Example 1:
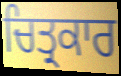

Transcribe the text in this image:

ਚਿਤ੍ਰਕਾਰ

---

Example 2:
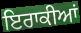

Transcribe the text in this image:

ਇਰਾਕੀਆਂ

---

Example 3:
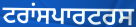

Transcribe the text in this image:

ਟਰਾਂਸਪਾਰਟਰਸ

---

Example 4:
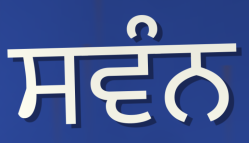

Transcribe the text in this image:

ਸਵੰਨ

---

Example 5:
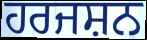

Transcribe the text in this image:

ਹਰਜਸ਼ਨ